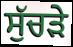
ਸੁੱਚੜੇ